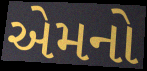
એમનો